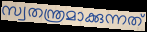
സ്വതന്ത്രമാക്കുന്നത്